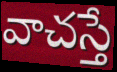
వాచస్తే